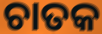
ଚାତକ